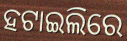
ହଟାଇଲିରେ